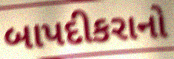
બાપદીકરાનો